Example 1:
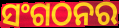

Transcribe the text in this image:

ସଂଗଠନର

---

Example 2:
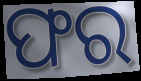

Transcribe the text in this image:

ଫର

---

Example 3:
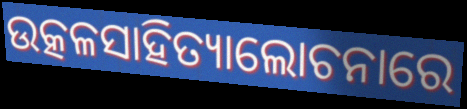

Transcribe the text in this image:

ଉତ୍କଳସାହିତ୍ୟାଲୋଚନାରେ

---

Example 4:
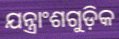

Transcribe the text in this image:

ଯନ୍ତ୍ରାଂଶଗୁଡ଼ିକ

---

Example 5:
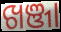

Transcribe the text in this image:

ଖଞ୍ଜା